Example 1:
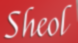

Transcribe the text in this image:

Sheol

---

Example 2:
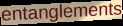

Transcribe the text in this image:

entanglements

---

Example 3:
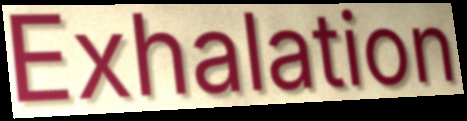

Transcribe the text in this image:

Exhalation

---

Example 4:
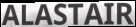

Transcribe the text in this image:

ALASTAIR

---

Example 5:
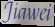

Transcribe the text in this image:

Jiawei